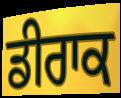
ਡੀਰਾਕ